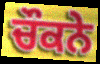
ਚੌਕਨੇ